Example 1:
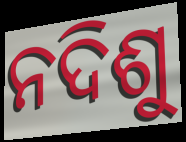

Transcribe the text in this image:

ନଦିଶୁ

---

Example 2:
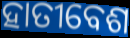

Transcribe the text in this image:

ହାତୀବେଶ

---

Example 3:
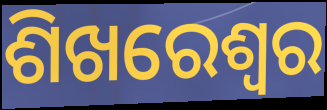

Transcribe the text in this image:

ଶିଖରେଶ୍ୱର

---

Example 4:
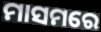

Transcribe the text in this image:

ମାସମରେ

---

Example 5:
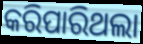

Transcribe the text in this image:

କରିପାରିଥଲା